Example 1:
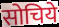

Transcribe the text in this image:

सोचिये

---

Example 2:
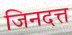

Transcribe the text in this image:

जिनदत्त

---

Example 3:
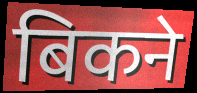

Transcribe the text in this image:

बिकने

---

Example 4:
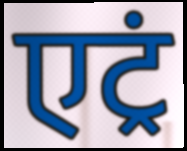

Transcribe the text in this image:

एट्रं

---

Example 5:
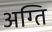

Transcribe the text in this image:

अग्ति